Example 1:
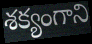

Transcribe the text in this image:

శక్యంగాని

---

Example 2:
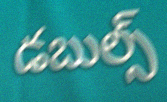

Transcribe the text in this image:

డబుల్స్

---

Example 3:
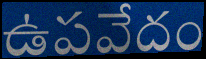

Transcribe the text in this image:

ఉపవేదం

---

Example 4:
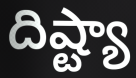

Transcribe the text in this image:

దిష్ట్యా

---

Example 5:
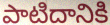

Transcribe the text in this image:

పాటిదానికి